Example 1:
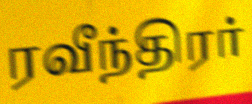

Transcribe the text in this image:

ரவீந்திரர்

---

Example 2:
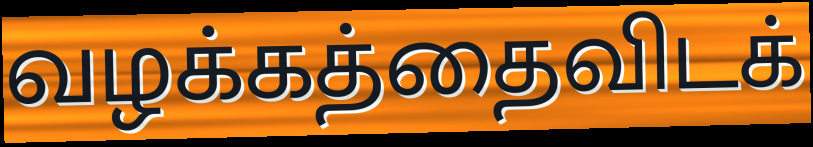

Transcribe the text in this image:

வழக்கத்தைவிடக்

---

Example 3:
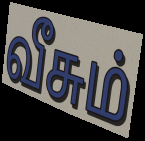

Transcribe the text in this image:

வீசும்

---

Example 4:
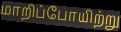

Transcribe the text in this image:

மாறிப்போயிற்று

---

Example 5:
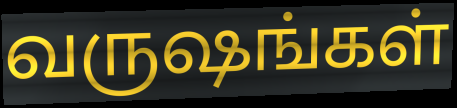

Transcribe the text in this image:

வருஷங்கள்